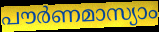
പൗർണമാസ്യാം